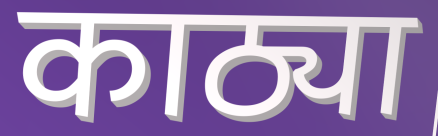
काठ्या